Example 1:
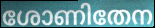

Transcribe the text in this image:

ശോണിതേന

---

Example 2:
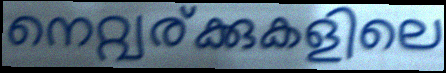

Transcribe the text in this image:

നെറ്റ്വര്ക്കുകളിലെ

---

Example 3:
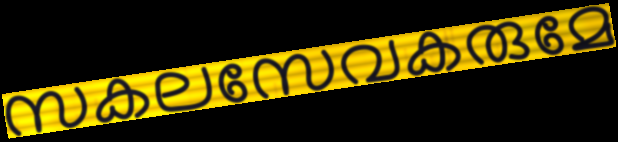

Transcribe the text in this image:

സകലസേവകരുമേ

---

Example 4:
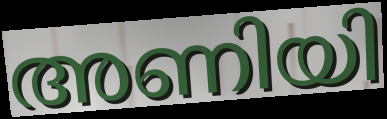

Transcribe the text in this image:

അണിയി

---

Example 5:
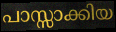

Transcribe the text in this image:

പാസ്സാക്കിയ